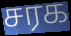
சரக